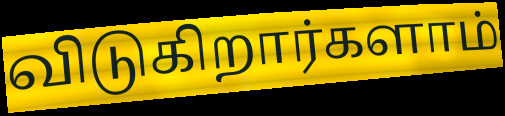
விடுகிறார்களாம்